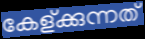
കേള്ക്കുന്നത്